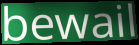
bewail